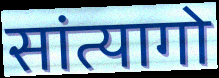
सांत्यागो